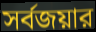
সর্বজয়ার